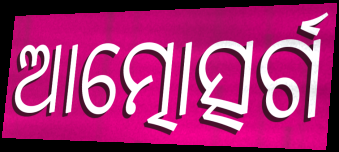
ଆତ୍ମୋତ୍ସର୍ଗ